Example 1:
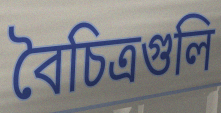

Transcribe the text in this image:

বৈচিত্রগুলি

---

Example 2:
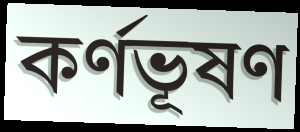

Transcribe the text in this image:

কর্ণভূষণ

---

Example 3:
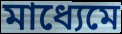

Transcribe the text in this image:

মাধ্যেমে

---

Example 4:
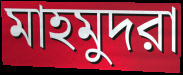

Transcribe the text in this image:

মাহমুদরা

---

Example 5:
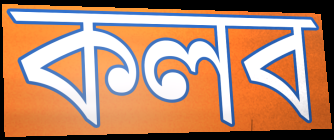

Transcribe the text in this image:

কলব